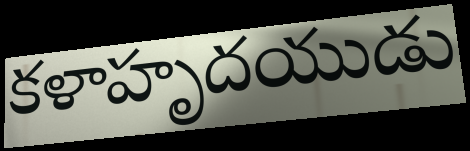
కళాహృదయుడు